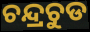
ଚନ୍ଦ୍ରଚୁଡ